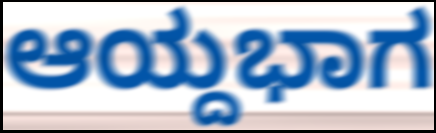
ಆಯ್ದಭಾಗ